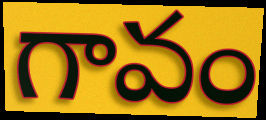
గావం